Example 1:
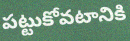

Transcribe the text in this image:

పట్టుకోవటానికి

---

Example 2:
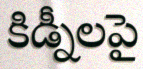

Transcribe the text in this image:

కిడ్నీలపై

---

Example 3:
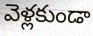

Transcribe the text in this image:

వెళ్లకుండా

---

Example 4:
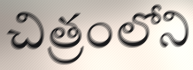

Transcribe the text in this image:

చిత్రంలోని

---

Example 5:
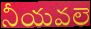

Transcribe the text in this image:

నీయవలె